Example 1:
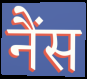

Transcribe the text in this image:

नैंस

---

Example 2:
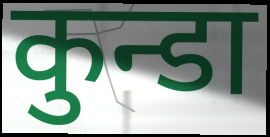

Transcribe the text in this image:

कुन्डा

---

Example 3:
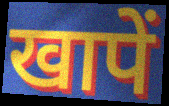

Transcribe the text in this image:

खापें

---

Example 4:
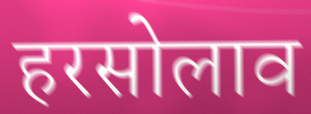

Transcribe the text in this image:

हरसोलाव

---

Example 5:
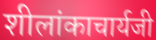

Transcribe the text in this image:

शीलांकाचार्यजी